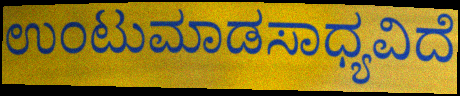
ಉಂಟುಮಾಡಸಾಧ್ಯವಿದೆ